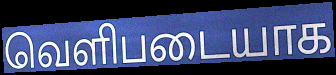
வெளிபடையாக